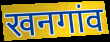
खनगांव